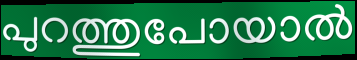
പുറത്തുപോയാൽ